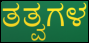
ತತ್ವಗಳ